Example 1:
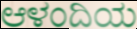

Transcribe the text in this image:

ಆಳಂದಿಯ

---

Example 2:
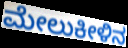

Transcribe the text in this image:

ಮೇಲುಕೀಳಿನ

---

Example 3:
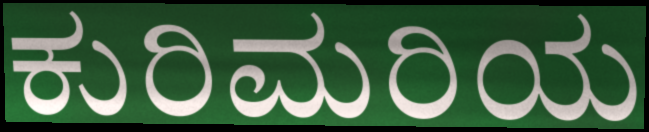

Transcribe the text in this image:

ಕುರಿಮರಿಯ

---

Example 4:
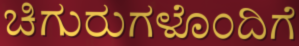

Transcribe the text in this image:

ಚಿಗುರುಗಳೊಂದಿಗೆ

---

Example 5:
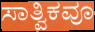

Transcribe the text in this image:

ಸಾತ್ವಿಕವೂ